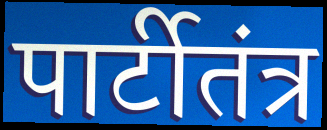
पार्टीतंत्र